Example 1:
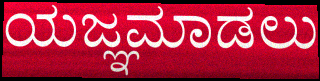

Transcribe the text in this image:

ಯಜ್ಞಮಾಡಲು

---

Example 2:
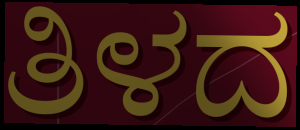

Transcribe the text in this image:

ತಿಳದ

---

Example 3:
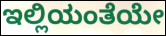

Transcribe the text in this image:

ಇಲ್ಲಿಯಂತೆಯೇ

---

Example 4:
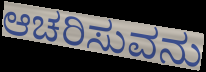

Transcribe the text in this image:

ಆಚರಿಸುವನು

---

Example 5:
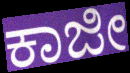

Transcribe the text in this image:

ಕಾಜೀ